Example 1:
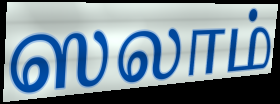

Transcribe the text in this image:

ஸலாம்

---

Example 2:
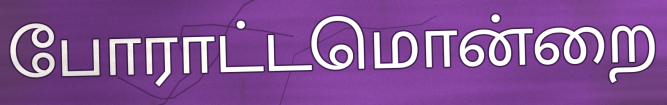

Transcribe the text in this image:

போராட்டமொன்றை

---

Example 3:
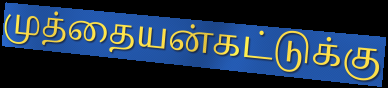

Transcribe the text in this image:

முத்தையன்கட்டுக்கு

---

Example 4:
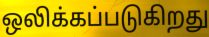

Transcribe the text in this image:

ஒலிக்கப்படுகிறது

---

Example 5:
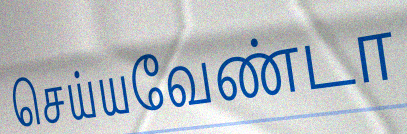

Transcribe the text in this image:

செய்யவேண்டா